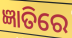
ଜ୍ଞାତିରେ